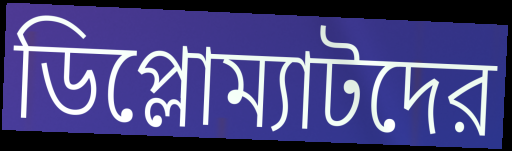
ডিপ্লোম্যাটদের